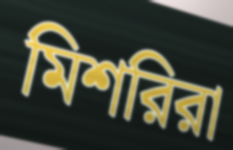
মিশরিরা